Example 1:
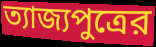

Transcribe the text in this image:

ত্যাজ্যপুত্রের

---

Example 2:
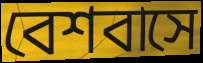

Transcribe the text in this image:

বেশবাসে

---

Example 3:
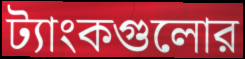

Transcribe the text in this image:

ট্যাংকগুলোর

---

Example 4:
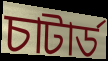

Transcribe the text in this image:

চাটার্ড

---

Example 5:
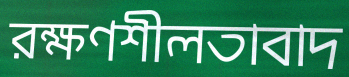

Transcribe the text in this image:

রক্ষণশীলতাবাদ